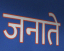
जनाते